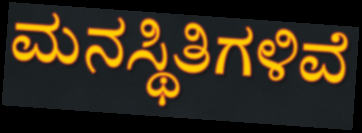
ಮನಸ್ಥಿತಿಗಳಿವೆ